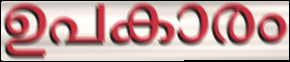
ഉപകാരം